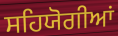
ਸਹਿਯੋਗੀਆਂ